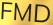
FMD